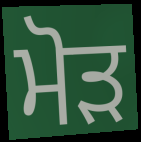
ਮੋਡ਼